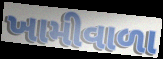
ખામીવાળા